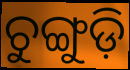
ଚୁଙ୍ଗୁଡ଼ି